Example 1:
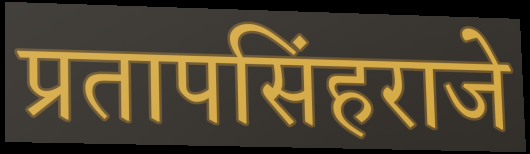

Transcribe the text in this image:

प्रतापसिंहराजे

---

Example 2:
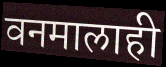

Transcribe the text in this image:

वनमालाही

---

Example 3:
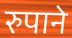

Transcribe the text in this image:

रुपाने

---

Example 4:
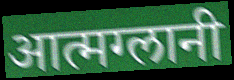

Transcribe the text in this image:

आत्मग्लानी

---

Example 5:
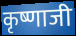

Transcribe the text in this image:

कृष्णाजी